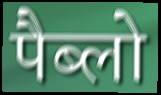
पैब्लो